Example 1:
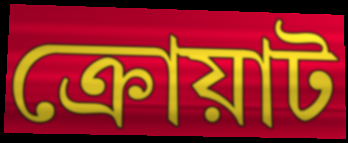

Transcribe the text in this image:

ক্রোয়াট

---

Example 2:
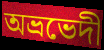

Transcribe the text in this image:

অভ্রভেদী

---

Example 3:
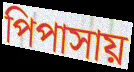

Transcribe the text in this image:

পিপাসায়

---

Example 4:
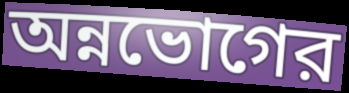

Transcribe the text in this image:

অন্নভোগের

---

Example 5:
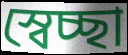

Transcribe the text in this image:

স্বেচ্ছা